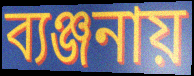
ব্যঞ্জনায়